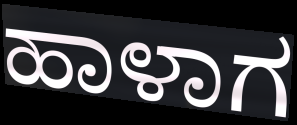
ಹಾಳಾಗ